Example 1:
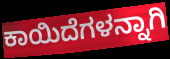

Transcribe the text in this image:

ಕಾಯಿದೆಗಳನ್ನಾಗಿ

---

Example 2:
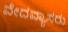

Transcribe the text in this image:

ವೇದವ್ಯಾಸರು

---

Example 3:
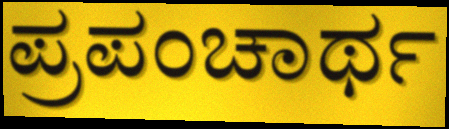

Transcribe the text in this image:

ಪ್ರಪಂಚಾರ್ಥ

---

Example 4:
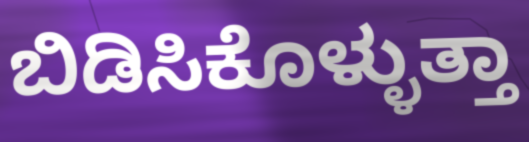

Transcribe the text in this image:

ಬಿಡಿಸಿಕೊಳ್ಳುತ್ತಾ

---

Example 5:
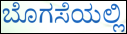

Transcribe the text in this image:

ಬೊಗಸೆಯಲ್ಲಿ